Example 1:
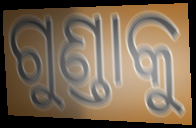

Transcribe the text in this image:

ଗୁଣ୍ଡାକୁ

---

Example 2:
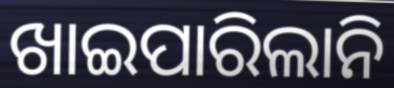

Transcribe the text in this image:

ଖାଇପାରିଲାନି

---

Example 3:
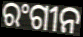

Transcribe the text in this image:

ରଂଗୀନ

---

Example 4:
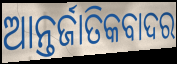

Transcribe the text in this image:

ଆନ୍ତର୍ଜାତିକବାଦର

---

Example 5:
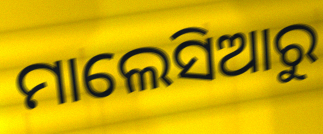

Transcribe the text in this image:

ମାଲେସିଆରୁ